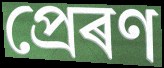
প্ৰেৰণ